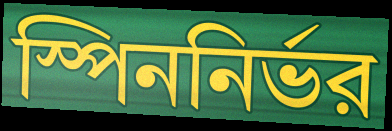
স্পিননির্ভর